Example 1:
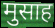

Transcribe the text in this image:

मुसाह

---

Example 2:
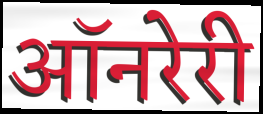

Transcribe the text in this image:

ऑनरेरी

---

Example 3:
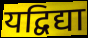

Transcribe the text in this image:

यद्विद्या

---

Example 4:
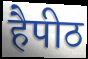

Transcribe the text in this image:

हैपीठ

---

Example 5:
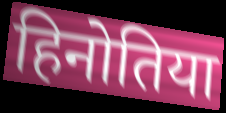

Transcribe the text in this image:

हिनोतिया